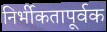
निर्भीकतापूर्वक